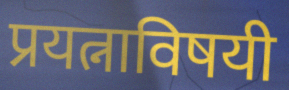
प्रयत्नाविषयी